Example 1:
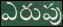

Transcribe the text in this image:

ఎరుపు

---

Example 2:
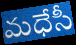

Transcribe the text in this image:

మధేసీ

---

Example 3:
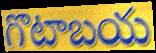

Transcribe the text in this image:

గొటాబయ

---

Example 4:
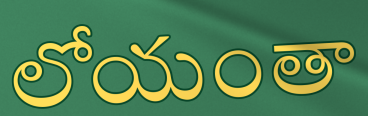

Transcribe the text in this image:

లోయంతా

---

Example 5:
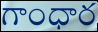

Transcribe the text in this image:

గాంధార